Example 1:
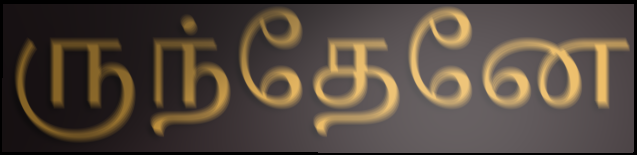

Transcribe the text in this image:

ருந்தேனே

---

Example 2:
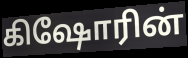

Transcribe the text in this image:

கிஷோரின்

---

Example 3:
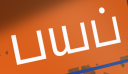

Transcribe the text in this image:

பயப்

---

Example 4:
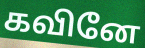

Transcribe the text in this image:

கவினே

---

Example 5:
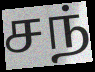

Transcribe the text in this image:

சந்